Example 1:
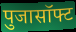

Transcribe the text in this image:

पुजासॉफ्ट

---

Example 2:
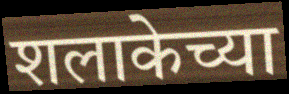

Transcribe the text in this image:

शलाकेच्या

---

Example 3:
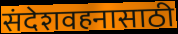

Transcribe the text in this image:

संदेशवहनासाठी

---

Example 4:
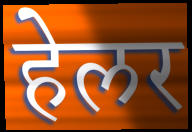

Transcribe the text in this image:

हेलर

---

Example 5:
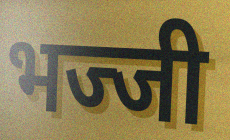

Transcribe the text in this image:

भज्जी